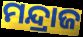
ମନ୍ଦ୍ରାଜ